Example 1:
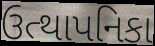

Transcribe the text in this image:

ઉત્થાપનિકા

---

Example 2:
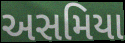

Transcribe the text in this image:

અસમિયા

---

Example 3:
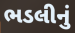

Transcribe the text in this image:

ભડલીનું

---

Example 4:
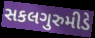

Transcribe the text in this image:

સકલગુરુમીડે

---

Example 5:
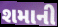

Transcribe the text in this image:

શમાની